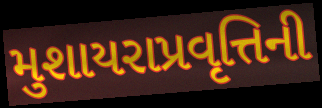
મુશાયરાપ્રવૃત્તિની